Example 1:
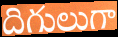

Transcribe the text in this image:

దిగులుగా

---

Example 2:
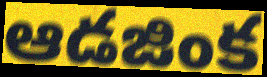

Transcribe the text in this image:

ఆడజింక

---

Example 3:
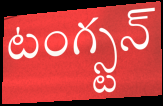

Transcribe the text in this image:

టంగ్స్టన్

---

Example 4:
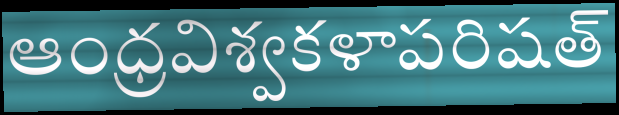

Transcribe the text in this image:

ఆంధ్రవిశ్వకళాపరిషత్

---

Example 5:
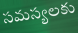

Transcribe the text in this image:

సమస్యలకు